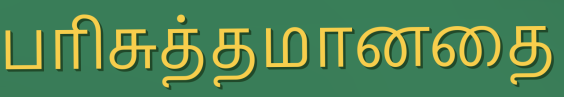
பரிசுத்தமானதை